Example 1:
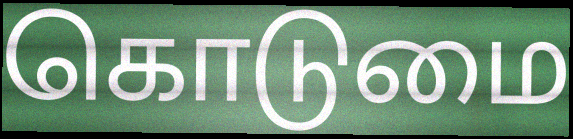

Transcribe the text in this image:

கொடுமை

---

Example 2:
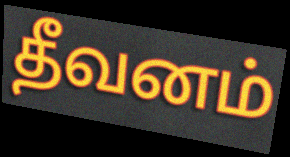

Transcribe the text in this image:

தீவனம்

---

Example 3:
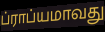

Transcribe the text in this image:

ப்ராப்யமாவது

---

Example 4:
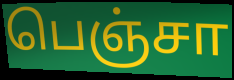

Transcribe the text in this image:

பெஞ்சா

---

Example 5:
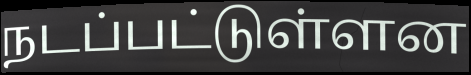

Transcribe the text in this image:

நடப்பட்டுள்ளன